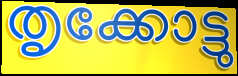
തൃക്കോട്ടു